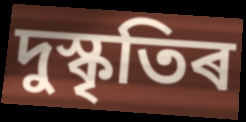
দুস্কৃতিৰ